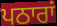
ਪਠਾਰਾਂ